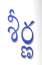
శీర్ణ